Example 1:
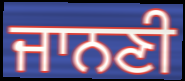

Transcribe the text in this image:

ਜਾਨਣੀ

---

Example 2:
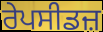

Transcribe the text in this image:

ਰੇਪਸੀਡਜ਼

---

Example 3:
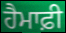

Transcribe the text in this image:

ਹੈਮਾਫ਼ੀ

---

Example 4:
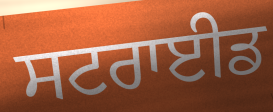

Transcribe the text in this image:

ਸਟਰਾਈਡ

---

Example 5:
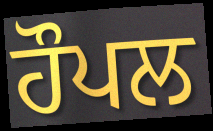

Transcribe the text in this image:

ਹੌਪਲ